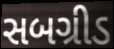
સબગ્રીડ